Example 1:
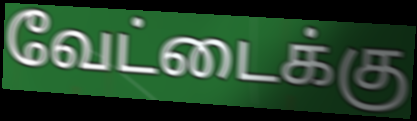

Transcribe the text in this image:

வேட்டைக்கு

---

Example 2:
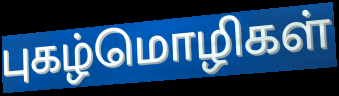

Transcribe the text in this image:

புகழ்மொழிகள்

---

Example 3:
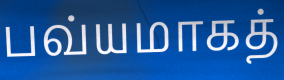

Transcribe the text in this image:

பவ்யமாகத்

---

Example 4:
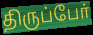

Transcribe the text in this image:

திருப்பேர்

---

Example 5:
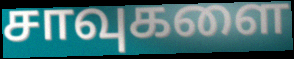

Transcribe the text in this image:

சாவுகளை